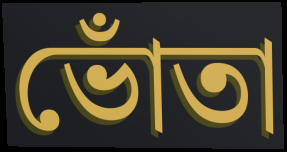
ভোঁতা